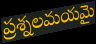
ప్రశ్నలమయమై